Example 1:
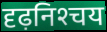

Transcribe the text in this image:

दृढ़निश्चय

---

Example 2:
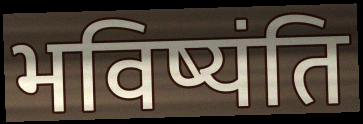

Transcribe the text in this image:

भविष्यंति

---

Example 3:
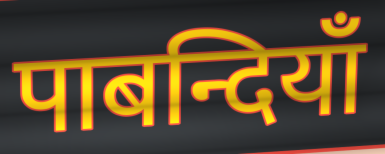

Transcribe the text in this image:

पाबन्दियाँ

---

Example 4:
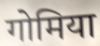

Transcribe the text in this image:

गोमिया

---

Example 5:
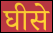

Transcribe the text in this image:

घीसे